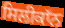
ਸਿਲੀਕਾੱਨ